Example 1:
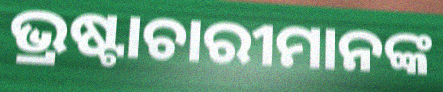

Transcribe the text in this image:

ଭ୍ରଷ୍ଟାଚାରୀମାନଙ୍କ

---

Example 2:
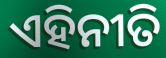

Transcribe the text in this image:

ଏହିନୀତି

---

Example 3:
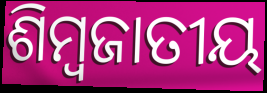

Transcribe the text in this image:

ଶିମ୍ବଜାତୀୟ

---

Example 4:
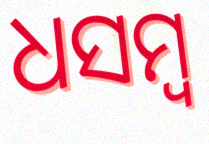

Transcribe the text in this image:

ଧସମ୍ବ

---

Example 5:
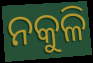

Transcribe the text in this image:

ନକୁଳି